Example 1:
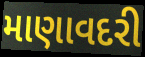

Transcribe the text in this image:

માણાવદરી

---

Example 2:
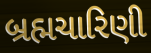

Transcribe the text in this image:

બ્રહ્મચારિણી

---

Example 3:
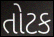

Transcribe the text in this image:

તોટક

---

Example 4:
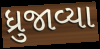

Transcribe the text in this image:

ધ્રુજાવ્યા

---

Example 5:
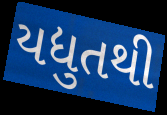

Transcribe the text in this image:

યદ્યુતથી